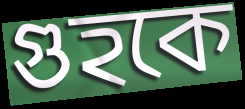
গুহকে